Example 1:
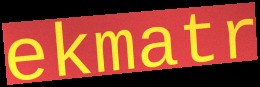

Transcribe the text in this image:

ekmatr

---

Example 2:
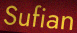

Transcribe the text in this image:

Sufian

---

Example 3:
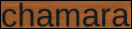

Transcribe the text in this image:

chamara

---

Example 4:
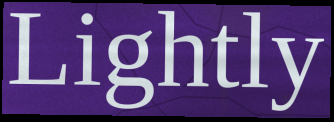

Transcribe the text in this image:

Lightly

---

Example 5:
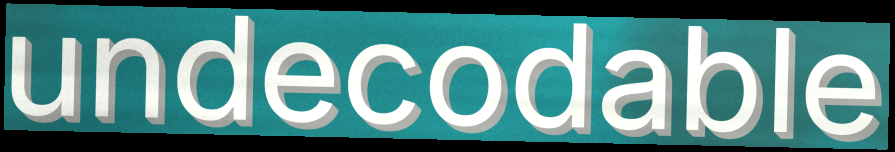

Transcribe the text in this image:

undecodable